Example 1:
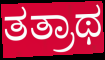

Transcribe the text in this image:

ತತ್ರಾಥ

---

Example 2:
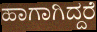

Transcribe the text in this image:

ಹಾಗಾಗಿದ್ದರೆ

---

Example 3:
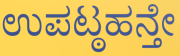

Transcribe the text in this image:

ಉಪಟ್ಠಹನ್ತೇ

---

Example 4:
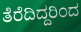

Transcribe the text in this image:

ತೆರೆದಿದ್ದರಿಂದ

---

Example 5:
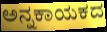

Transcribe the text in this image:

ಅನ್ನಕಾಯಕದ